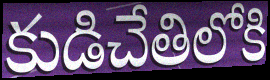
కుడిచేతిలోకి